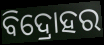
ବିଦ୍ରୋହର